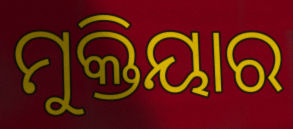
ମୁକ୍ତିୟାର